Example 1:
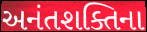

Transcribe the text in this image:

અનંતશક્તિના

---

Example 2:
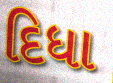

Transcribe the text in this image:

દિધા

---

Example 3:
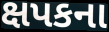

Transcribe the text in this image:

ક્ષપકના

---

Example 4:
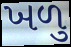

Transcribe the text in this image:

ખળુ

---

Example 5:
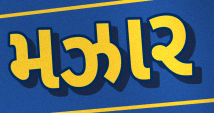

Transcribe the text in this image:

મઝાર